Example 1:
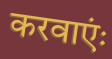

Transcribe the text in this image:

करवाएंः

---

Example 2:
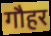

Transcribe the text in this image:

गौहर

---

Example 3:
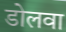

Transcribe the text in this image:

डोलवा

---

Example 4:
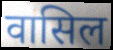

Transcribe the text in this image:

वासिल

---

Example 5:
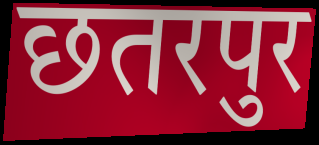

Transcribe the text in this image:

छतरपुर